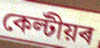
কেল্টীয়ৰ